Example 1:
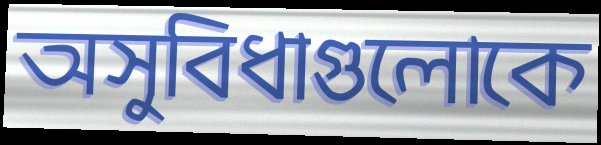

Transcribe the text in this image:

অসুবিধাগুলোকে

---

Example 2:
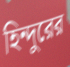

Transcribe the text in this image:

হিন্দুরের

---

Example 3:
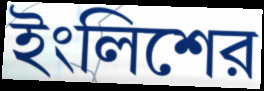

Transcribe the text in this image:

ইংলিশের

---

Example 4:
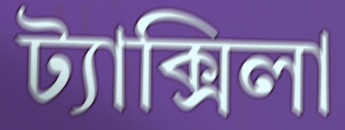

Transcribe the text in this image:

ট্যাক্সিলা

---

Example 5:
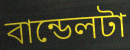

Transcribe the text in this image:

বান্ডেলটা